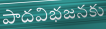
పాదవిభజనకు